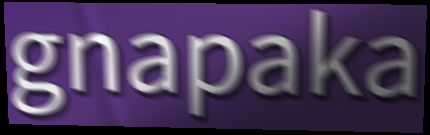
gnapaka